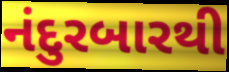
નંદુરબારથી